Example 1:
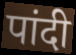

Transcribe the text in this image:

पांदी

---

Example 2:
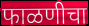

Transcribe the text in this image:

फाळणीचा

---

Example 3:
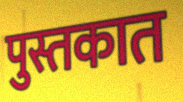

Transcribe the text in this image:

पुस्तकात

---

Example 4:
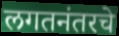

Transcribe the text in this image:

लगतनंतरचे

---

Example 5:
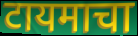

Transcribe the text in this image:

टायमाचा